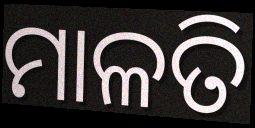
ମାଳତି